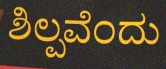
ಶಿಲ್ಪವೆಂದು